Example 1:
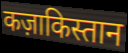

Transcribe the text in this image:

कज़ाकिस्तान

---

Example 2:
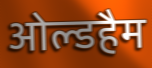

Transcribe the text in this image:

ओल्डहैम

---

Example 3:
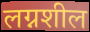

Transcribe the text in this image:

लग्नशील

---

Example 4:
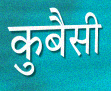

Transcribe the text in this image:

कुबैसी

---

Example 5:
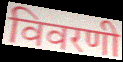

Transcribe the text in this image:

विवरणी